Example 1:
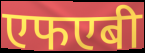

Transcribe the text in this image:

एफएबी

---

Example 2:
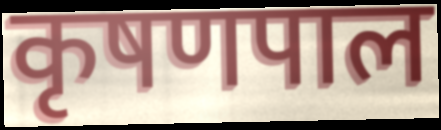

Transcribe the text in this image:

कृषणपाल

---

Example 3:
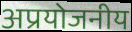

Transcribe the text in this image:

अप्रयोजनीय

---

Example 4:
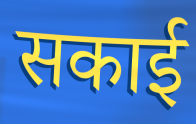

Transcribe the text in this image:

सकाई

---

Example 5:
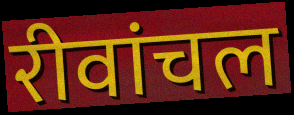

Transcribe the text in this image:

रीवांचल